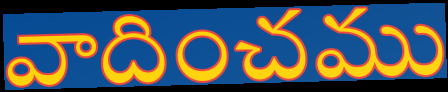
వాదించము